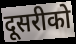
दूसरीको